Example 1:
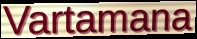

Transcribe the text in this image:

Vartamana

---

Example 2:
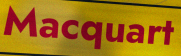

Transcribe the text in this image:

Macquart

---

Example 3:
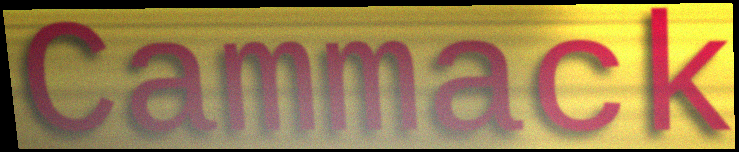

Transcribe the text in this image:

Cammack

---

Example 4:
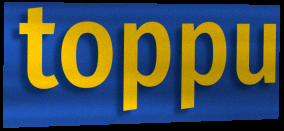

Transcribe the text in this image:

toppu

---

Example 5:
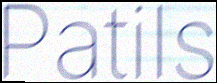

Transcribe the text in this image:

Patils